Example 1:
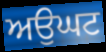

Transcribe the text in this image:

ਅਉਘਟ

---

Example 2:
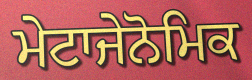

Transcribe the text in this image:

ਮੇਟਾਜੇਨੋਮਿਕ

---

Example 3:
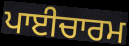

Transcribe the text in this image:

ਪਾਈਚਾਰਮ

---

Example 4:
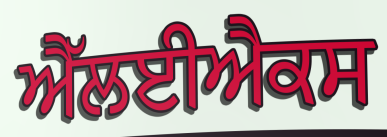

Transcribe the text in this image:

ਐੱਲਈਐਕਸ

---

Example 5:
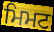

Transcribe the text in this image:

ਮਿਮਟ